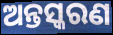
ଅନ୍ତସ୍କରଣ